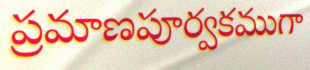
ప్రమాణపూర్వకముగా